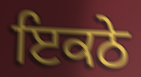
ਇਕਠੇ